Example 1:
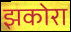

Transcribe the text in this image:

झकोरा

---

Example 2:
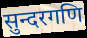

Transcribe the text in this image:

सुन्दरगणि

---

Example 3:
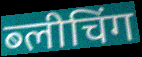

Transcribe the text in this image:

ब्‍लीचिंग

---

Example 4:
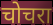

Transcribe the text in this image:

चोचरा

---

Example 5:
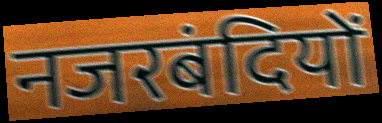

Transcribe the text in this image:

नजरबंदियों